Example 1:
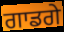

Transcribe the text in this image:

ਗਾਡਗੇ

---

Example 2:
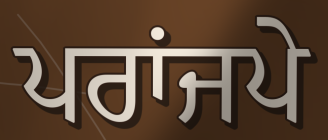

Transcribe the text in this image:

ਪਰਾਂਜਪੇ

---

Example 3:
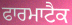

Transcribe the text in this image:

ਫਾਰਮਾਟੈਕ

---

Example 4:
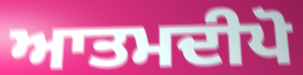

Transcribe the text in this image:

ਆਤਮਦੀਪੋ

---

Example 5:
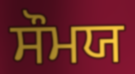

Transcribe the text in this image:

ਸੌਮਯ